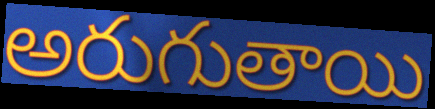
అరుగుతాయి